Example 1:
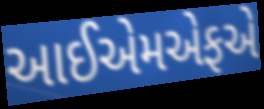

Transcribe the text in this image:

આઈએમએફએ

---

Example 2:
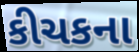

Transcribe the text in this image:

કીચકના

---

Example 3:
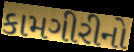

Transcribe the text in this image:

કામગીરીનો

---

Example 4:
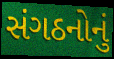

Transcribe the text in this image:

સંગઠનોનું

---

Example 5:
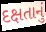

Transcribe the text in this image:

દક્ષતાનું